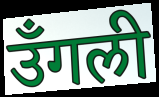
उँगली